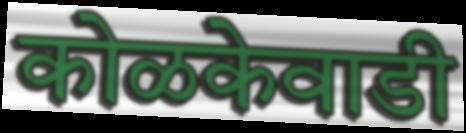
कोळकेवाडी